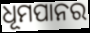
ଧୂମପାନର